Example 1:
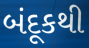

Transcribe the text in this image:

બંદૂકથી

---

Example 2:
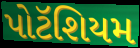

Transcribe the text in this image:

પોટૅશિયમ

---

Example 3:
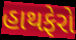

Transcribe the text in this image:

હાથફેરો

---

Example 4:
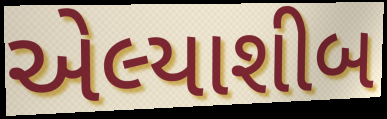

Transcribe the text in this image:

એલ્યાશીબ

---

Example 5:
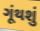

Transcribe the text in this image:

ગૂંથશું